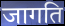
जागति